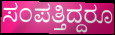
ಸಂಪತ್ತಿದ್ದರೂ